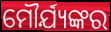
ମୌର୍ଯ୍ୟଙ୍କର